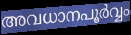
അവധാനപൂർവ്വം